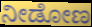
ನೀಡೋಣ